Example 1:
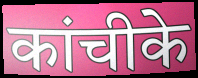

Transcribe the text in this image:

कांचीके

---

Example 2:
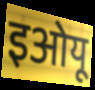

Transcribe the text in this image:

इओयू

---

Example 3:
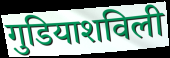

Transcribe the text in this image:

गुडियाशविली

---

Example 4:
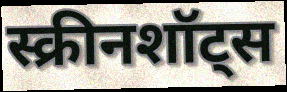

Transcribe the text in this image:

स्क्रीनशॉट्स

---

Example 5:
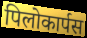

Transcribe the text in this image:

पिलोकार्पस